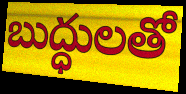
బుద్ధులతో